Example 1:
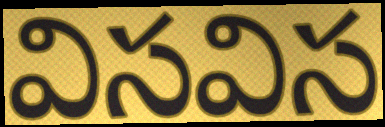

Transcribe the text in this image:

విసవిస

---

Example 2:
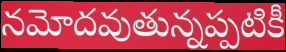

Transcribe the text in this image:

నమోదవుతున్నప్పటికీ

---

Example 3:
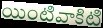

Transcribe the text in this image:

యింటివాకిటి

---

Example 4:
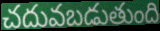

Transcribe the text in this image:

చదువబడుతుంది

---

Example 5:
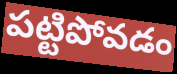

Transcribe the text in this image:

పట్టిపోవడం